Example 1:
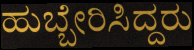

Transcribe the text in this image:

ಹುಬ್ಬೇರಿಸಿದ್ದರು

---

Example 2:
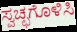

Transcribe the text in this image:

ಸ್ವಚ್ಛಗೊಳಿಸಿ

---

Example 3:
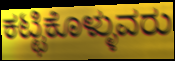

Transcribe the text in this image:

ಕಟ್ಟಿಕೊಳ್ಳುವರು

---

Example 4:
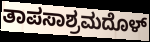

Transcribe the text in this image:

ತಾಪಸಾಶ್ರಮದೊಳ್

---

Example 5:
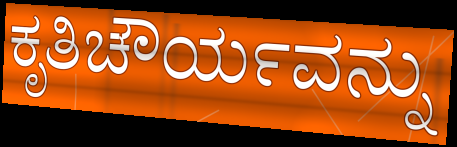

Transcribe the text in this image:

ಕೃತಿಚೌರ್ಯವನ್ನು